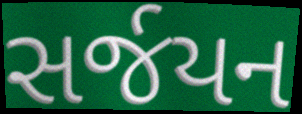
સર્જયન